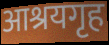
आश्रयगृह